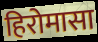
हिरोमासा